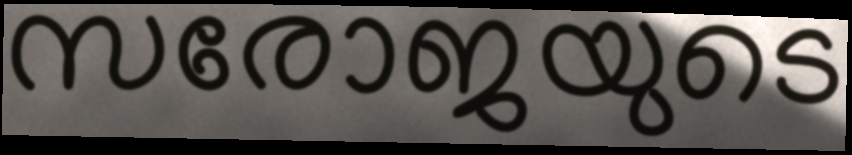
സരോജയുടെ